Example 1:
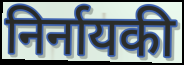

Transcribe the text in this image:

निर्नायकी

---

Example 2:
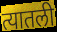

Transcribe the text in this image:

त्यातली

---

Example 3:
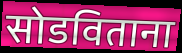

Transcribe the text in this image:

सोडविताना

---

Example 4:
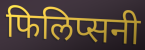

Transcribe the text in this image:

फिलिप्सनी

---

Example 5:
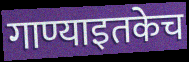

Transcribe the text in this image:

गाण्याइतकेच